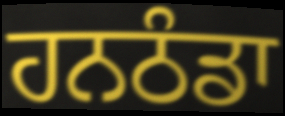
ਹਨਠੰਡਾ